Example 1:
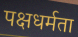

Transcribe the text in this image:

पक्षधर्मता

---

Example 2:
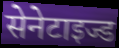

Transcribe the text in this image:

सेनेटाइज्ड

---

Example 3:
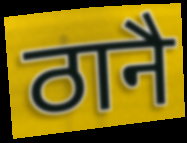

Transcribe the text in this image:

ठानै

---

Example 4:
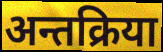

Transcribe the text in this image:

अन्तक्रिया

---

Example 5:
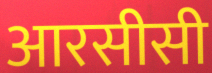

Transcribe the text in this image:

आरसीसी